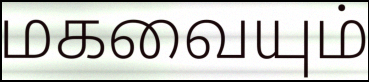
மகவையும்